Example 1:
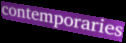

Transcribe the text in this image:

contemporaries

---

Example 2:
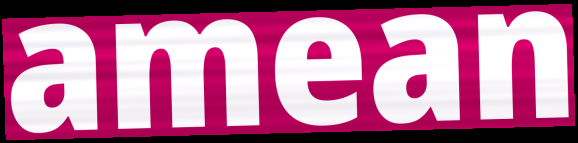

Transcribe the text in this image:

amean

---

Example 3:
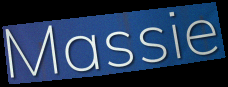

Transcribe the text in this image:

Massie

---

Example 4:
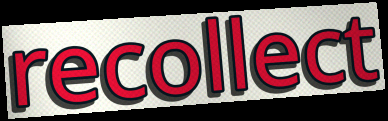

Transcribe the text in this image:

recollect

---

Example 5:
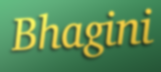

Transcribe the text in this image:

Bhagini